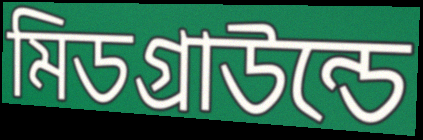
মিডগ্রাউন্ডে